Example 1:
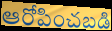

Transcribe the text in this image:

ఆరోపించబడి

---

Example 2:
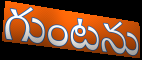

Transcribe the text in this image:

గుంటను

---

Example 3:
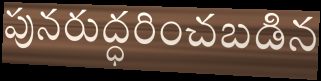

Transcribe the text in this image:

పునరుద్ధరించబడిన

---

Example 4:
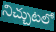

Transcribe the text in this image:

నిచ్చుటలో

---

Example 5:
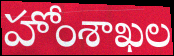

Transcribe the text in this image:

హోంశాఖల